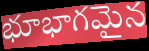
భూభాగమైన